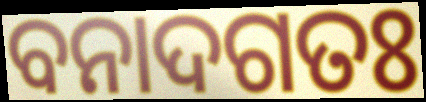
ବନାଦଗତଃ